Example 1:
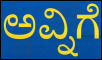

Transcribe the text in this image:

ಅವ್ನಿಗೆ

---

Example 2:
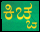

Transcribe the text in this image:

ಕಿಚ್ಚ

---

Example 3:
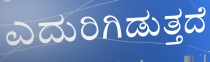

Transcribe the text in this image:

ಎದುರಿಗಿಡುತ್ತದೆ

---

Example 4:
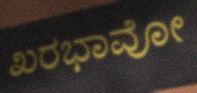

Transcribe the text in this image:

ಖರಭಾವೋ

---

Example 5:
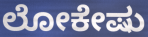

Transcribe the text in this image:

ಲೋಕೇಷು